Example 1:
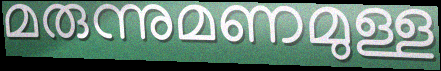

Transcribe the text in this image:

മരുന്നുമണമുള്ള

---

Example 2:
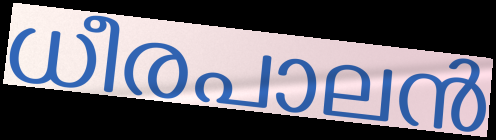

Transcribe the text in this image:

ധീരപാലൻ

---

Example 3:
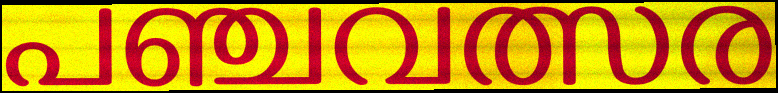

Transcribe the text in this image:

പഞ്ചവത്സര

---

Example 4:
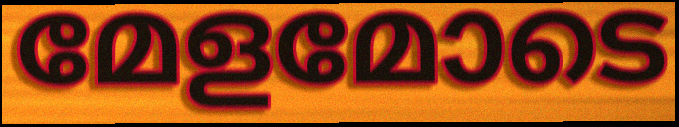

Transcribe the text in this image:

മേളമോടെ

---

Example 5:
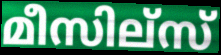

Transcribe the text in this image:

മീസില്സ്